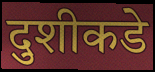
दुशीकडे